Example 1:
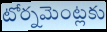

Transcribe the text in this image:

టోర్నమెంట్లకు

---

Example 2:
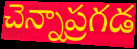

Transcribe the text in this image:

చెన్నాప్రగడ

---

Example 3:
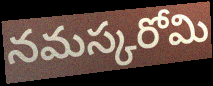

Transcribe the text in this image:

నమస్కరోమి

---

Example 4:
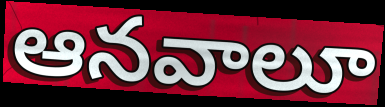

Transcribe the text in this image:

ఆనవాలూ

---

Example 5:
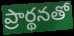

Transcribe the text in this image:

ప్రార్థనతో